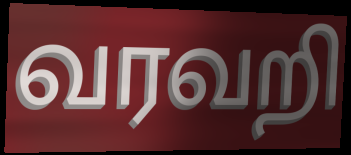
வரவறி